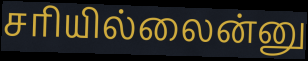
சரியில்லைன்னு